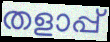
തളാപ്പ്